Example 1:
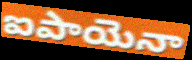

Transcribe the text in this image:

ఐపాయెనా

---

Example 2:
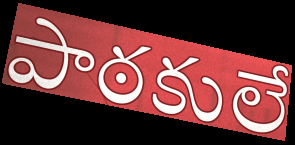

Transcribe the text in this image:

పాఠకులే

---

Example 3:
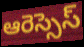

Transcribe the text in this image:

ఆరెస్సెస్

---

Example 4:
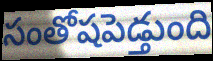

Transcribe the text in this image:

సంతోషపెడ్తుంది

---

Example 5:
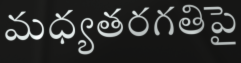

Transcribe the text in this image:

మధ్యతరగతిపై